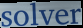
solver